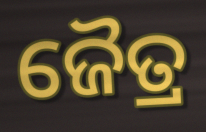
ଜୈତ୍ର